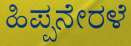
ಹಿಪ್ಪನೇರಳೆ